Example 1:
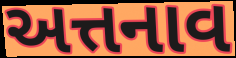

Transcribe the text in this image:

અત્તનાવ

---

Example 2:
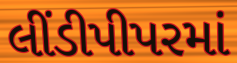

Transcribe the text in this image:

લીંડીપીપરમાં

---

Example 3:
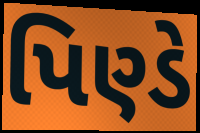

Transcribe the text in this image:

પિણ્ડે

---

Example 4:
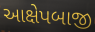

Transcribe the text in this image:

આક્ષેપબાજી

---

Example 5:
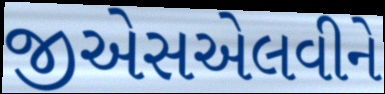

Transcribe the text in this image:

જીએસએલવીને